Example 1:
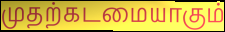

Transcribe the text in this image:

முதற்கடமையாகும்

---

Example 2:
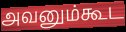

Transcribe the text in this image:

அவனும்கூட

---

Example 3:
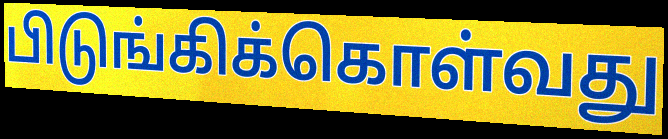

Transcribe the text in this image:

பிடுங்கிக்கொள்வது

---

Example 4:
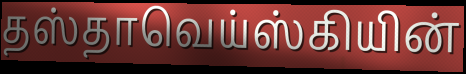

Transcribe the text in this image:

தஸ்தாவெய்ஸ்கியின்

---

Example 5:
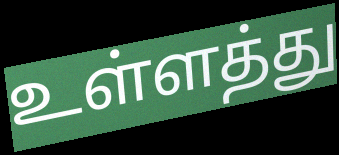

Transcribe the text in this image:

உள்ளத்து